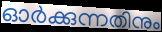
ഓർക്കുന്നതിനും